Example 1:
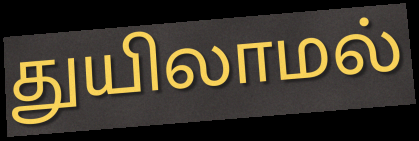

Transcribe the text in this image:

துயிலாமல்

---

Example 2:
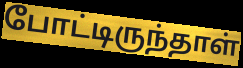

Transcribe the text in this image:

போட்டிருந்தாள்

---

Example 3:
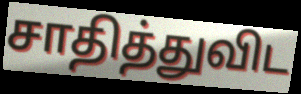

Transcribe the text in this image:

சாதித்துவிட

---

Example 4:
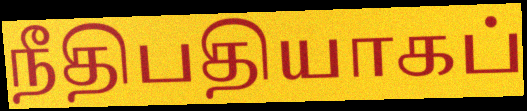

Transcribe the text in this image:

நீதிபதியாகப்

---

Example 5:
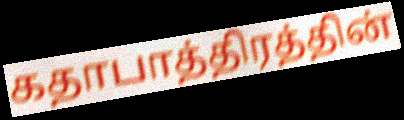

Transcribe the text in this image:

கதாபாத்திரத்தின்